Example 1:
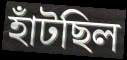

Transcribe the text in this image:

হাঁটছিল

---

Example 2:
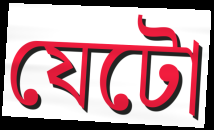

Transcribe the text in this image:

যেটো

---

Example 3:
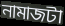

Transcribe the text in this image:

নামাজটা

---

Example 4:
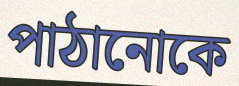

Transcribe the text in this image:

পাঠানোকে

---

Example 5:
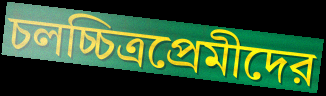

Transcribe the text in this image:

চলচ্চিত্রপ্রেমীদের